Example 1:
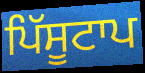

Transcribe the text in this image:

ਪਿੱਸੂਟਾਪ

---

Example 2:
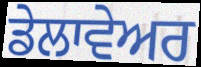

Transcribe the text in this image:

ਡੇਲਾਵੇਅਰ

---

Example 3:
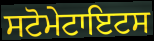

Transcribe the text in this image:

ਸਟੋਮੇਟਾਇਟਸ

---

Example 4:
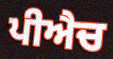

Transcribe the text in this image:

ਪੀਐਚ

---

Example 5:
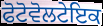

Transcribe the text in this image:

ਫੋਟੋਵੋਲਟੇਇਕ